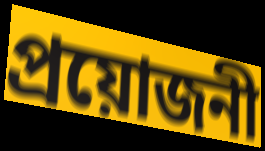
প্ৰয়োজনী